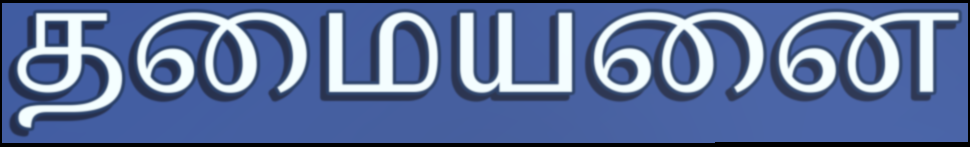
தமையனை